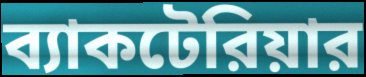
ব্যাকটেরিয়ার